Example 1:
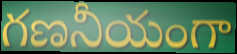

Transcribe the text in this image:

గణనీయంగా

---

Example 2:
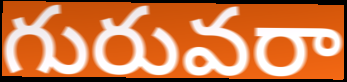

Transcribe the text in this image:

గురువరా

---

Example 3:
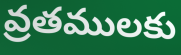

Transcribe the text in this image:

వ్రతములకు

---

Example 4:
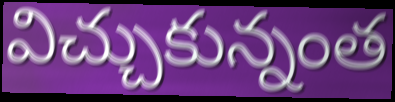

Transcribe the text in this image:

విచ్చుకున్నంత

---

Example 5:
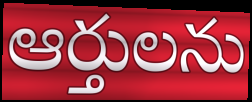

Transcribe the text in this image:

ఆర్తులను